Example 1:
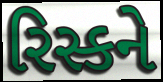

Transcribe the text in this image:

રિસ્કને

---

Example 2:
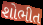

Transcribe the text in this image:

શોભીત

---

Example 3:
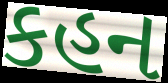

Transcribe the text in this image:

કહન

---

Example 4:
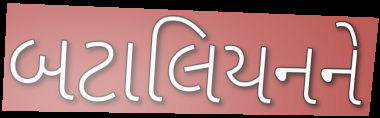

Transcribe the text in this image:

બટાલિયનને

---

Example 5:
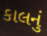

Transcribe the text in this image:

કાલનું